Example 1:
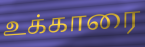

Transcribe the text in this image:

உக்காரை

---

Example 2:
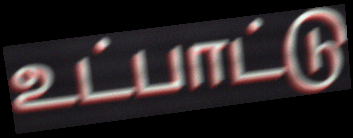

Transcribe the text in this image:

உட்பாட்டு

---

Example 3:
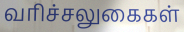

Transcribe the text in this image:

வரிச்சலுகைகள்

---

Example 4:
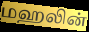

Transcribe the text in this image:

மஹலின்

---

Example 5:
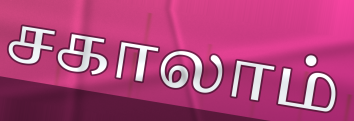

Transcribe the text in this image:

சகாலாம்